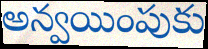
అన్వయింపుకు